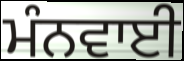
ਮੰਨਵਾਈ